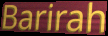
Barirah